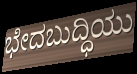
ಭೇದಬುದ್ಧಿಯು